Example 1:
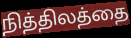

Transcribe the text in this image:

நித்திலத்தை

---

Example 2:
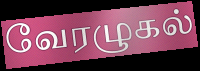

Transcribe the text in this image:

வேரழுகல்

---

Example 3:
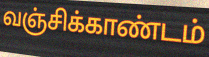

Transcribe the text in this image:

வஞ்சிக்காண்டம்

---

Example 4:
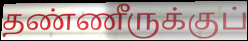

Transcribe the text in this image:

தண்ணீருக்குப்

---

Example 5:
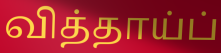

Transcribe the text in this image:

வித்தாய்ப்